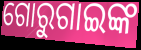
ଗୋରୁଗାଇଙ୍କ